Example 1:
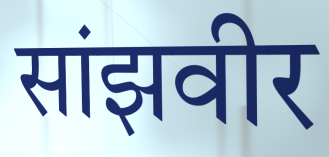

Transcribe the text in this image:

सांझवीर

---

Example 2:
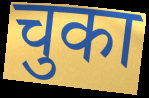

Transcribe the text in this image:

चुका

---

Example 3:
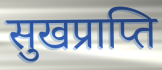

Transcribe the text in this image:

सुखप्राप्ति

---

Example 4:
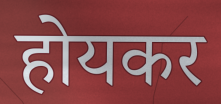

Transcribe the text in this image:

होयकर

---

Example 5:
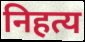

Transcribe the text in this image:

निहत्य